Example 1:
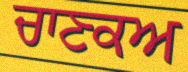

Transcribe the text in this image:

ਚਾਣਕਅ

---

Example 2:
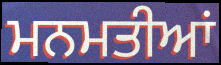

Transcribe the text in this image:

ਮਨਮਤੀਆਂ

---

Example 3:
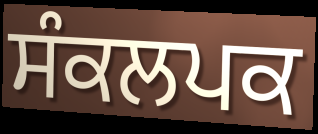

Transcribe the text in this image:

ਸੰਕਲਪਕ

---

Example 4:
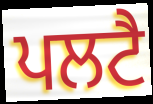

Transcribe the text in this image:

ਪਲਟੈ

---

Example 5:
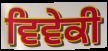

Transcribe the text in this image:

ਵਿਵੇਕੀ